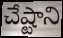
చేష్టాని